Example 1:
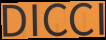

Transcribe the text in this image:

DICCI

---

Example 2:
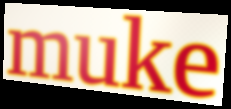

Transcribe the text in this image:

muke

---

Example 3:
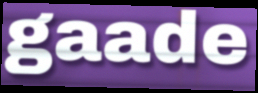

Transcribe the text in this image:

gaade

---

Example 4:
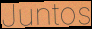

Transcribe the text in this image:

Juntos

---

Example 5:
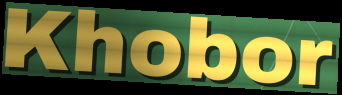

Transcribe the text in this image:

Khobor